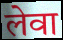
लेवा